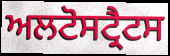
ਅਲਟੋਸਟ੍ਰੈਟਸ